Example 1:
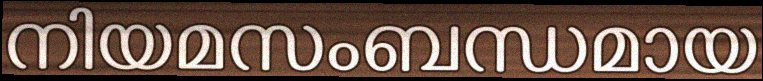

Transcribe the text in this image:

നിയമസംബന്ധമായ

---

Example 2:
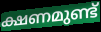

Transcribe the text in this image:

ക്ഷണമുണ്ട്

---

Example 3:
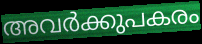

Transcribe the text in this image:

അവർക്കുപകരം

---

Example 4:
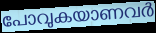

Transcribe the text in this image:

പോവുകയാണവർ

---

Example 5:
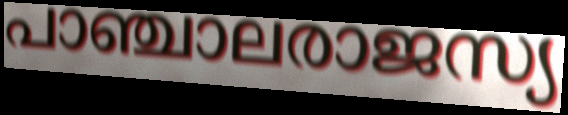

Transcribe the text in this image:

പാഞ്ചാലരാജസ്യ